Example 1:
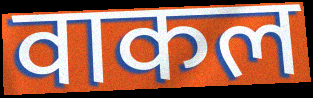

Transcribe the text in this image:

वाकल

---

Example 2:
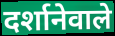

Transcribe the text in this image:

दर्शानेवाले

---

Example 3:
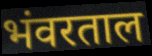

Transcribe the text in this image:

भंवरताल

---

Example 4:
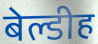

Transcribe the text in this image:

बेल्डीह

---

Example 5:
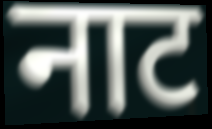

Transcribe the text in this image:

नाट